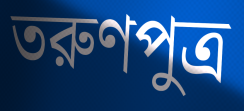
তরুণপুত্র